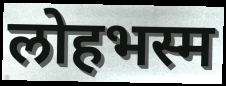
लोहभस्म